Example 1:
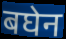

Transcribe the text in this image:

बघेन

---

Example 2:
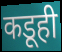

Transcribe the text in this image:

कडूही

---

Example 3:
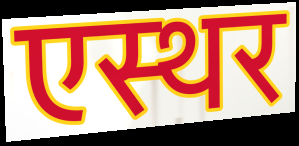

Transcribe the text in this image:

एस्थर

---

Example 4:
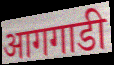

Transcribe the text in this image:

आगगाडी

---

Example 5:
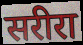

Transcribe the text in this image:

सरीरा